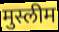
मुस्लीम